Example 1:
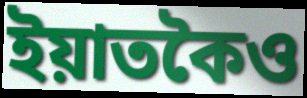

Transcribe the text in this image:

ইয়াতকৈও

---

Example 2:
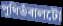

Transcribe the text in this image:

পুথিভঁৰালটো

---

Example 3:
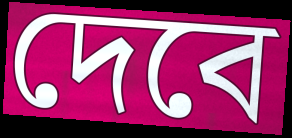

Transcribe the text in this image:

দেবে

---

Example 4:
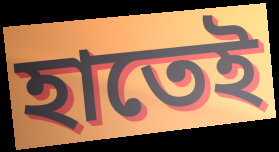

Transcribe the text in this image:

হাতেই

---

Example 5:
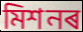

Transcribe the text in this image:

মিশনৰ